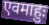
एवमाहुः